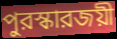
পুরস্কারজয়ী